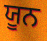
ਯੂਨ